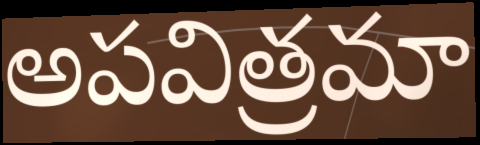
అపవిత్రమా